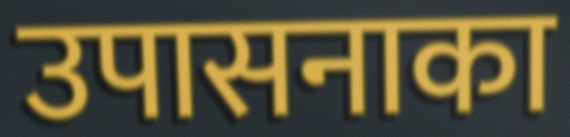
उपासनाका